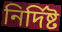
নিৰ্দিষ্ট